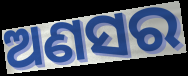
ଅଣସର